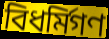
বিধর্মিগণ